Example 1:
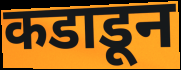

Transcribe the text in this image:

कडाडून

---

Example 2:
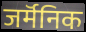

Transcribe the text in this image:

जर्मॅनिक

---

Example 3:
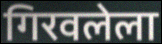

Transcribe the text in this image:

गिरवलेला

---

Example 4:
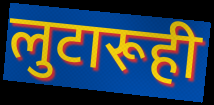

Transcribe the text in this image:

लुटारूही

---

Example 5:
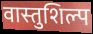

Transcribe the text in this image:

वास्तुशिल्प